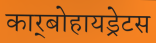
कार्बोहायड्रेटस